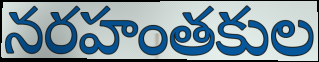
నరహంతకుల